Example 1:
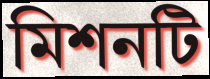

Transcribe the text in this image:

মিশনটি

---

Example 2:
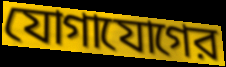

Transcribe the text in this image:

যোগাযোগের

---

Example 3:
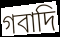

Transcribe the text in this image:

গবাদি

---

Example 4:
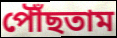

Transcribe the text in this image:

পৌঁছতাম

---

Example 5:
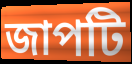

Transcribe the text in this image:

জাপটি